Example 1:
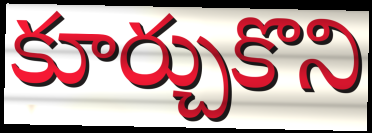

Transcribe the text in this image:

కూర్చుకొని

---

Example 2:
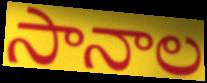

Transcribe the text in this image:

సానాల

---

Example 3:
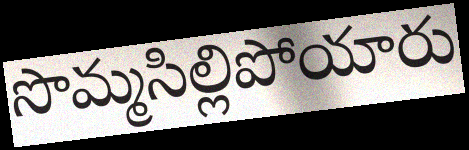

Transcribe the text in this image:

సొమ్మసిల్లిపోయారు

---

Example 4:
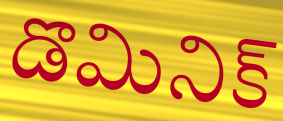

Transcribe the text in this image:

డొమినిక్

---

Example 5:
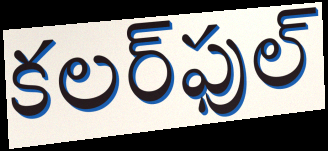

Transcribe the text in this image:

కలర్‌ఫుల్